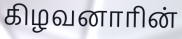
கிழவனாரின்